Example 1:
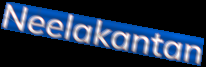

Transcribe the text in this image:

Neelakantan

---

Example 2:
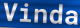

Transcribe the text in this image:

Vinda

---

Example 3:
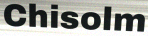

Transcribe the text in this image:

Chisolm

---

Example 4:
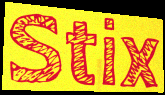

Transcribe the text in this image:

Stix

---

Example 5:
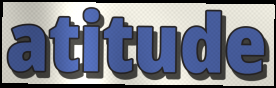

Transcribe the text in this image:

atitude